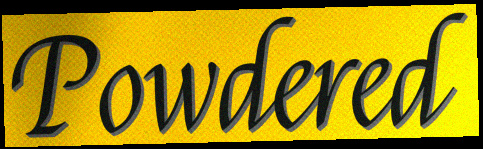
Powdered